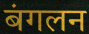
बंगलन